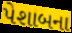
પેશાબના